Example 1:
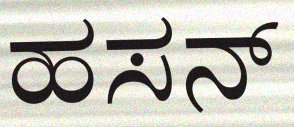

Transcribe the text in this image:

ಹಸನ್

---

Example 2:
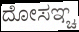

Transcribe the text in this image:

ದೋಸಞ್ಚ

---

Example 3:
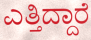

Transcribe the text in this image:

ಎತ್ತಿದ್ದಾರೆ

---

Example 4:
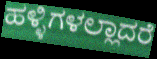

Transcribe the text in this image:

ಹಳ್ಳಿಗಳಲ್ಲಾದರೆ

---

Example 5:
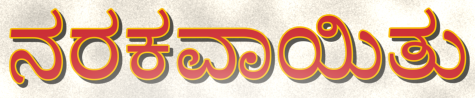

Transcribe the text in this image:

ನರಕವಾಯಿತು